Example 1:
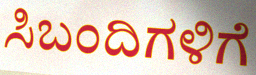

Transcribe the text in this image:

ಸಿಬಂದಿಗಳಿಗೆ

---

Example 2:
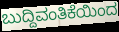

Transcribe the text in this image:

ಬುದ್ದಿವಂತಿಕೆಯಿಂದ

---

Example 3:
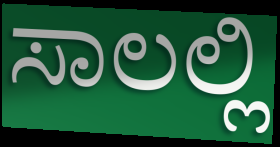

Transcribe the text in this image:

ಸಾಲಲ್ಲಿ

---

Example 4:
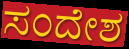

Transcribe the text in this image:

ಸಂದೇಶ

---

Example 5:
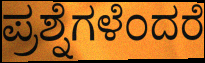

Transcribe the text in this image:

ಪ್ರಶ್ನೆಗಳೆಂದರೆ